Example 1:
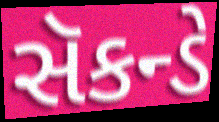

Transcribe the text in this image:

સૅકન્ડે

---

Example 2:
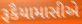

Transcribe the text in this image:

રૂકૈયામાસીએ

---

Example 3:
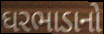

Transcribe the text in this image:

ઘરભાડાનો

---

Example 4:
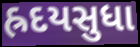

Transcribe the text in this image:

હ્રદયસુધા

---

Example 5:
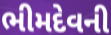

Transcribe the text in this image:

ભીમદેવની